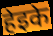
हेइके